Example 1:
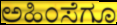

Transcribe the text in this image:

ಅಹಿಂಸೆಗೂ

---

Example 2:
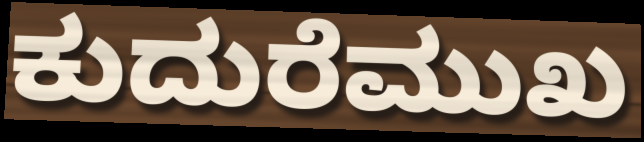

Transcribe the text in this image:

ಕುದುರೆಮುಖ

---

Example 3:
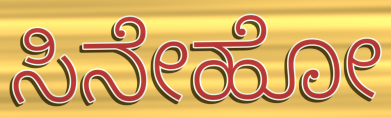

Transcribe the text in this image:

ಸಿನೇಹೋ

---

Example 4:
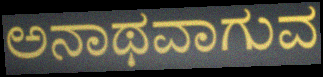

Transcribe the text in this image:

ಅನಾಥವಾಗುವ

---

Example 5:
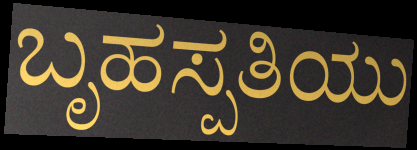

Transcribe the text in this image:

ಬೃಹಸ್ಪತಿಯು